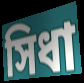
সিধা